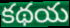
కథయ